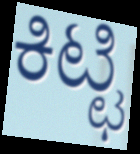
ಕಿಟ್ಟಿ